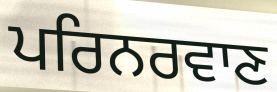
ਪਰਿਨਰਵਾਣ